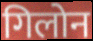
गिलोन